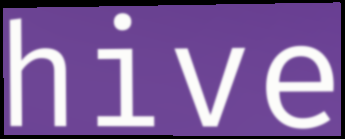
hive